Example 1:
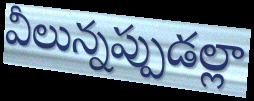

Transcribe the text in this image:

వీలున్నప్పుడల్లా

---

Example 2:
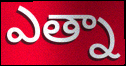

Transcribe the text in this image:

ఎత్నా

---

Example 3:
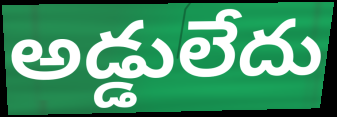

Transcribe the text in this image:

అడ్డులేదు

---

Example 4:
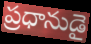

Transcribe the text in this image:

ప్రధానుడై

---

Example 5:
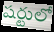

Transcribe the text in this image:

షర్టులో